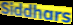
Siddhars